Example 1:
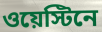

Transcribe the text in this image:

ওয়েস্টিনে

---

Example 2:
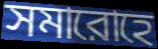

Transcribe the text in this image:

সমারোহে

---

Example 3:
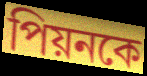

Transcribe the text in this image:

পিয়নকে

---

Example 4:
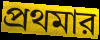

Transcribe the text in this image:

প্রথমার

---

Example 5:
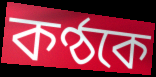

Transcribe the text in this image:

কণ্ঠকে